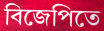
বিজেপিতে